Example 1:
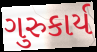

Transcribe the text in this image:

ગુરુકાર્ય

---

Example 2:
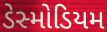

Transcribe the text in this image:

ડેસ્મોડિયમ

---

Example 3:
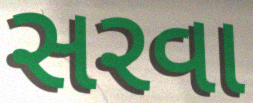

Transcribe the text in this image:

સરવા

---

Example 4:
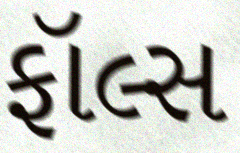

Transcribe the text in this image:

ફૉલ્સ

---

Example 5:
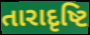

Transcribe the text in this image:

તારાદૃષ્ટિ